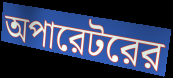
অপারেটরের